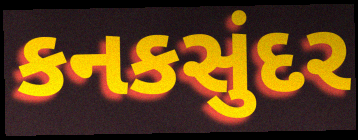
કનકસુંદર